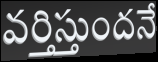
వర్తిస్తుందనే